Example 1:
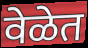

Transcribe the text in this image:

वेळेत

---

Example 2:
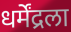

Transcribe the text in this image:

धर्मेंद्रला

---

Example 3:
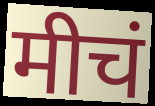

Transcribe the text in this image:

मीचं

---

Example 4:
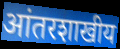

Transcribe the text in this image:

आंतरशाखीय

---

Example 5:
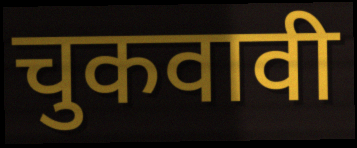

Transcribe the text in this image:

चुकवावी